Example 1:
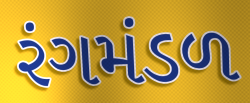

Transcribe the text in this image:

રંગમંડળ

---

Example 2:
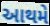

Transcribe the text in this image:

આથમે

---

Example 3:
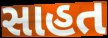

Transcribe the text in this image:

સાહત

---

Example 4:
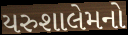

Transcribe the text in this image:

યરુશાલેમનો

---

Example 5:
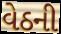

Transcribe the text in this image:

વેઠની